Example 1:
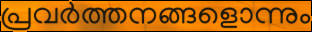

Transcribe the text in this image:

പ്രവർത്തനങ്ങളൊന്നും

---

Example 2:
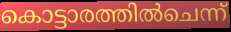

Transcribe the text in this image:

കൊട്ടാരത്തിൽചെന്ന്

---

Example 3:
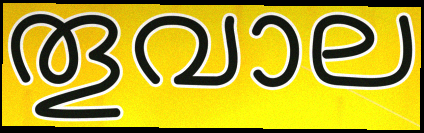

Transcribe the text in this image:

തൂവാല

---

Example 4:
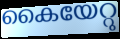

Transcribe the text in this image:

കൈയേറ്റു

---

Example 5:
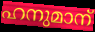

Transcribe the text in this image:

ഹനുമാന്